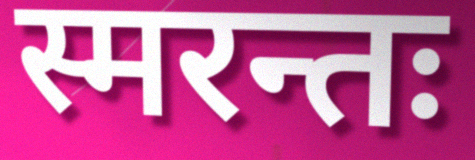
स्मरन्तः